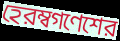
হেরম্বগণেশের